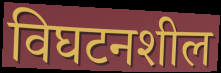
विघटनशील